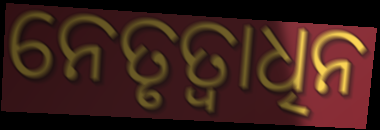
ନେତୃତ୍ୱାଧିନ